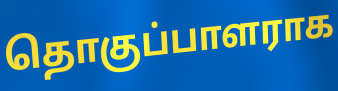
தொகுப்பாளராக